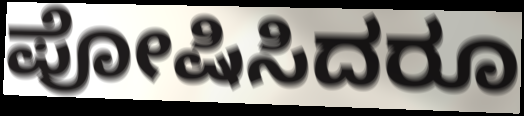
ಪೋಷಿಸಿದರೂ